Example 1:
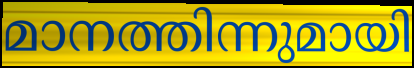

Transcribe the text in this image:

മാനത്തിന്നുമായി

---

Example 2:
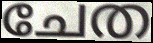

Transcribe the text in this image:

ചേത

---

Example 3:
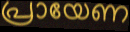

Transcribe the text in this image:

പ്രായേണ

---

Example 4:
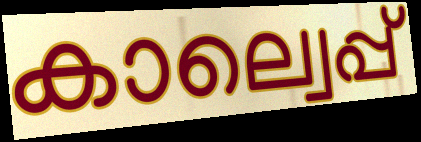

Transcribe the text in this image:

കാല്വെപ്പ്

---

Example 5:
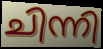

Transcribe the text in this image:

ചിന്നി